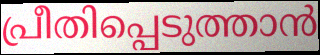
പ്രീതിപ്പെടുത്താൻ